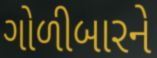
ગોળીબારને